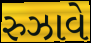
રુઝાવે